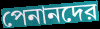
পেনানদের